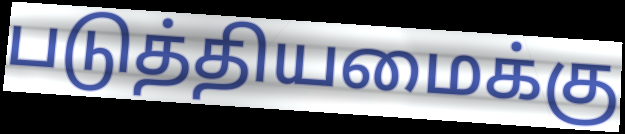
படுத்தியமைக்கு